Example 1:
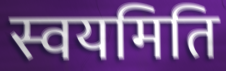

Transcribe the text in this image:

स्वयमिति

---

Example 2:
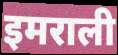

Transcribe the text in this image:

इमराली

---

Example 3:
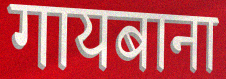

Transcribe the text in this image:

गायबाना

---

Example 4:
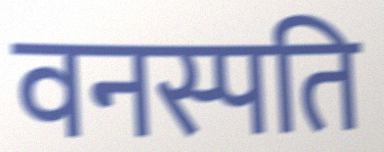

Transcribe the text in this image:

वनस्‍पति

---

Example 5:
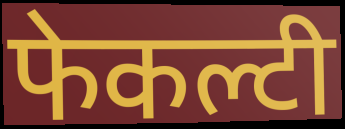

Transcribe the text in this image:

फेकल्टी